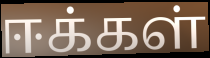
ஈக்கள்